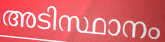
അടിസ്ഥാനം